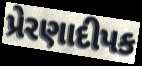
પ્રેરણાદીપક